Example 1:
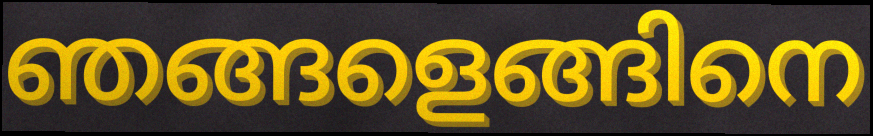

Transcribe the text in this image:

ഞങ്ങളെങ്ങിനെ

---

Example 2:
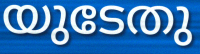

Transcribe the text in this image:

യുടേതു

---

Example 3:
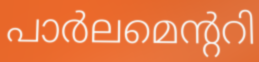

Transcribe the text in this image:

പാർലമെന്ററി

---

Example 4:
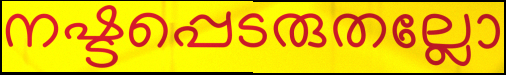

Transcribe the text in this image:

നഷ്ടപ്പെടരുതല്ലോ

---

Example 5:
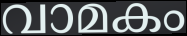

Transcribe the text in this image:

വാമകം